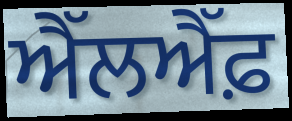
ਐੱਲਐੱਫ਼